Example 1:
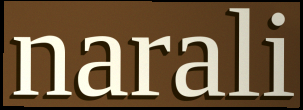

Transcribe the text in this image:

narali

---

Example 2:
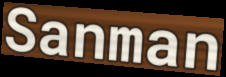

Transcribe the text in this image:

Sanman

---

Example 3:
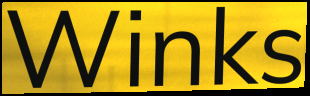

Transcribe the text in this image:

Winks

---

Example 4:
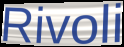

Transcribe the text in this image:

Rivoli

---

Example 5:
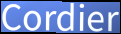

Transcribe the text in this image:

Cordier